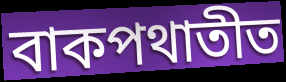
বাকপথাতীত